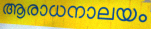
ആരാധനാലയം